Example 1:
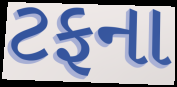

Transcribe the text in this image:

ટફના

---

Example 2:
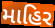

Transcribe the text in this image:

માહિર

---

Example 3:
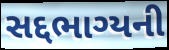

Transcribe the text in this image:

સદ્દભાગ્યની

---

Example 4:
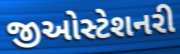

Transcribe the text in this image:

જીઓસ્ટેશનરી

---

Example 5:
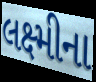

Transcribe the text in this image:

લક્ષ્મીના